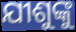
ଯୀଶୁଙ୍କୁ